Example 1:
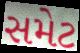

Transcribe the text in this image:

સમેટ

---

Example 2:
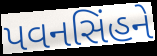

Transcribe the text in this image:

પવનસિંહને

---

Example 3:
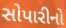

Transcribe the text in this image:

સોપારીનો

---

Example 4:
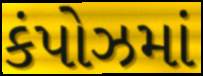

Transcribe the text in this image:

કંપોઝમાં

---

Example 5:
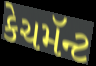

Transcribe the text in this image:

કેચમૅન્ટ